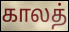
காலத்